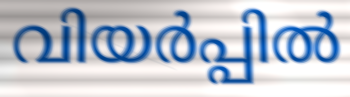
വിയർപ്പിൽ